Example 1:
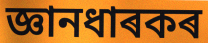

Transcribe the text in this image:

জ্ঞানধাৰকৰ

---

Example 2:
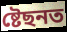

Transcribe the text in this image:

ষ্টেছনত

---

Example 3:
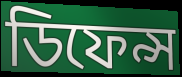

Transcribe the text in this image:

ডিফেন্স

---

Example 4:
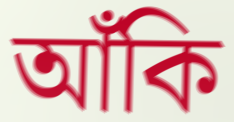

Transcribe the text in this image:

আঁকি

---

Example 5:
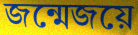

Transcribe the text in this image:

জন্মেজয়ে